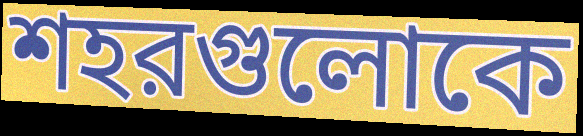
শহরগুলোকে